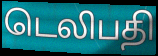
டெலிபதி